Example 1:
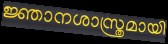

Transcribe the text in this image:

ജ്ഞാനശാസ്ത്രമായി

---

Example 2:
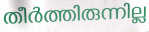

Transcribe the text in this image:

തീർത്തിരുന്നില്ല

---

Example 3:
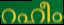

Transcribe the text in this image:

റഹീം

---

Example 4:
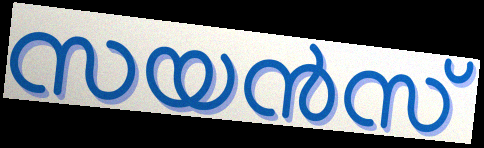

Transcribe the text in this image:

സയൻസ്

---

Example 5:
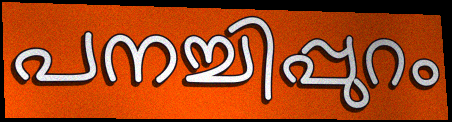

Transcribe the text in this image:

പനച്ചിപ്പുറം